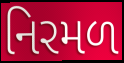
નિરમળ